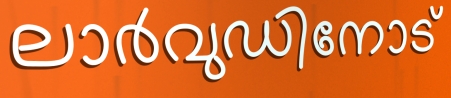
ലാർവുഡിനോട്